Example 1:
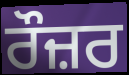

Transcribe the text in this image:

ਰੌਜ਼ਰ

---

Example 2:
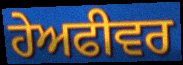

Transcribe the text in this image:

ਹੇਅਫੀਵਰ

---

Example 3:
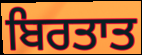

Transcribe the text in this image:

ਬਿਰਤਾਤ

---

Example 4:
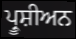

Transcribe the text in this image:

ਪ੍ਰੂਸ਼ੀਅਨ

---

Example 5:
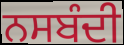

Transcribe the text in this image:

ਨਸਬੰਦੀ